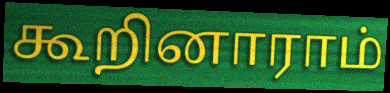
கூறினாராம்